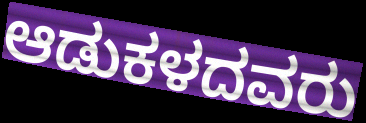
ಆಡುಕಳದವರು